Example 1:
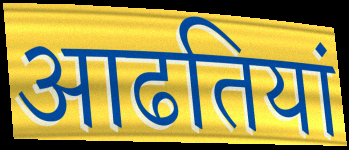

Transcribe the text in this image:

आढतियां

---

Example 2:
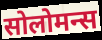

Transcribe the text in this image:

सोलोमन्स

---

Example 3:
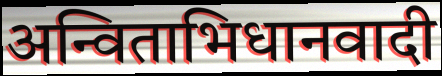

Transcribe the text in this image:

अन्विताभिधानवादी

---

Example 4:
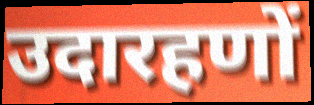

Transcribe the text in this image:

उदारहणों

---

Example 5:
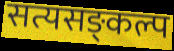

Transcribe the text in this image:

सत्यसङ्कल्प